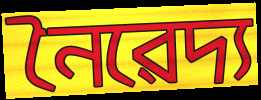
নৈৱেদ্য